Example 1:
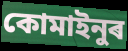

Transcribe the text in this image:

কোমাইনুৰ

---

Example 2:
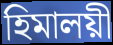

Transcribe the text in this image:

হিমালয়ী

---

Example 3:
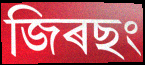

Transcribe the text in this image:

জিৰছং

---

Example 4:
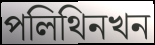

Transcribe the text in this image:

পলিথিনখন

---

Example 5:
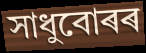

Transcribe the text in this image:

সাধুবোৰৰ